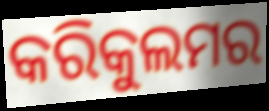
କରିକୁଲମର